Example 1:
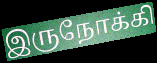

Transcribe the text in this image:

இருநோக்கி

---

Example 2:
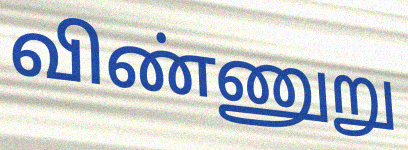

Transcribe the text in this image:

விண்ணுறு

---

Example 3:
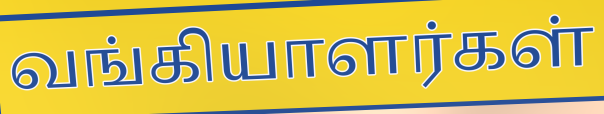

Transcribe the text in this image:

வங்கியாளர்கள்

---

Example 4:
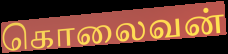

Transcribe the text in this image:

கொலைவன்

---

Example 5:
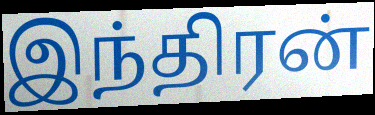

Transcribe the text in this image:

இந்திரன்